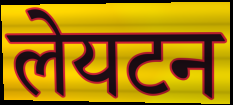
लेयटन